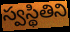
స్వస్థితిని